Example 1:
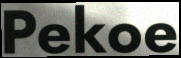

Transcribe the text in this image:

Pekoe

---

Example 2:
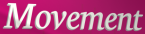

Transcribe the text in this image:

Movement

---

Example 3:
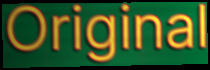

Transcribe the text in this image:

Original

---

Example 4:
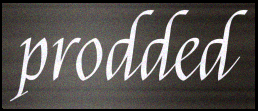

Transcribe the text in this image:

prodded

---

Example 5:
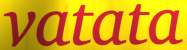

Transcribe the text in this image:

vatata